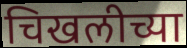
चिखलीच्या